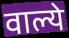
वाल्ये